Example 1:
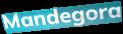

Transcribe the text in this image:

Mandegora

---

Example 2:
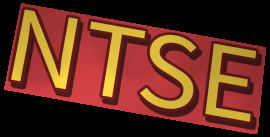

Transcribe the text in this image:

NTSE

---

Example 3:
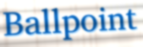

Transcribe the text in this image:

Ballpoint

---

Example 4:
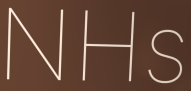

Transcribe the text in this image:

NHs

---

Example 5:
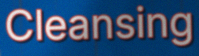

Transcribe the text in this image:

Cleansing